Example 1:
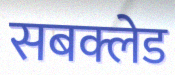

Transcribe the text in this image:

सबक्लेड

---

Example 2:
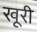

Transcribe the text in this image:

खूरी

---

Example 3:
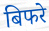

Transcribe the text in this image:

बिफरे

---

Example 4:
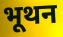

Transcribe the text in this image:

भूथन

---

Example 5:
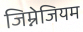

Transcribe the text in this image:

जिम्नेजियम